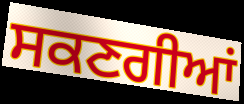
ਸਕਣਗੀਆਂ